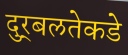
दुर्बलतेकडे